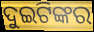
ଦୁଇଟିଙ୍କର